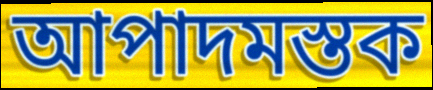
আপাদমস্তক